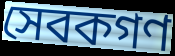
সেবকগণ